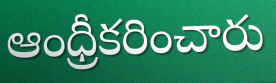
ఆంధ్రీకరించారు